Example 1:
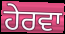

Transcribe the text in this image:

ਹੇਰਵਾ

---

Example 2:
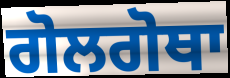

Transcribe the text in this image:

ਗੋਲਗੋਥਾ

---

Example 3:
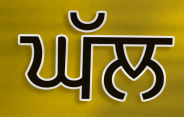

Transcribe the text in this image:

ਘੱਲ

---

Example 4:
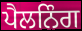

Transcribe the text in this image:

ਪੈਲਨਿੰਗ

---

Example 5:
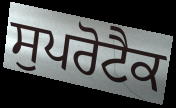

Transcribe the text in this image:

ਸੁਪਰੋਟੈਕ